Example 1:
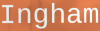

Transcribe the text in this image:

Ingham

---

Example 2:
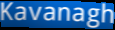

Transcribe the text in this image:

Kavanagh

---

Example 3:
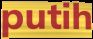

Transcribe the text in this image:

putih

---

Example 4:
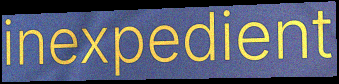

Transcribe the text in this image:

inexpedient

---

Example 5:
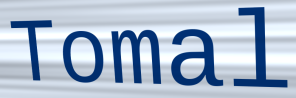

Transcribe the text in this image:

Tomal